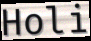
Holi